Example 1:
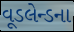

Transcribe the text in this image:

વૂડલેન્ડના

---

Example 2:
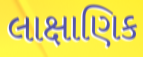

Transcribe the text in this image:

લાક્ષાણિક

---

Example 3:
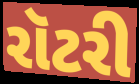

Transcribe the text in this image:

રૉટરી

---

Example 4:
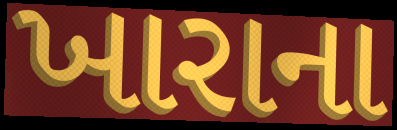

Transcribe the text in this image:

ખારાના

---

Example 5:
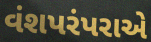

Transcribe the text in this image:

વંશપરંપરાએ